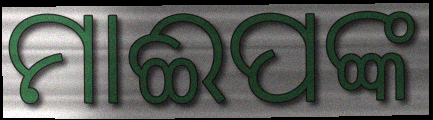
ମାଈପଙ୍କ